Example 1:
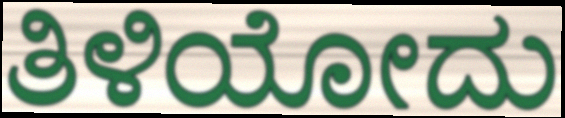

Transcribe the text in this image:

ತಿಳಿಯೋದು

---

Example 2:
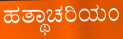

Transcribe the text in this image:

ಹತ್ಥಾಚರಿಯಂ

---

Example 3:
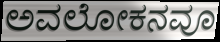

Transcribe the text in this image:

ಅವಲೋಕನವೂ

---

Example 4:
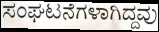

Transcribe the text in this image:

ಸಂಘಟನೆಗಳಾಗಿದ್ದವು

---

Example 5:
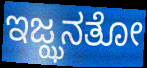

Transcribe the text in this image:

ಇಜ್ಝನತೋ